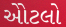
એોટલો